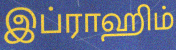
இப்ராஹிம்